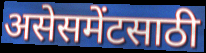
असेसमेंटसाठी